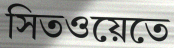
সিতওয়েতে